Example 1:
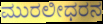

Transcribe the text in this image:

ಮುರಲೀಧರನ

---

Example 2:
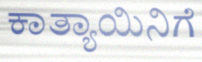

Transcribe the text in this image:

ಕಾತ್ಯಾಯಿನಿಗೆ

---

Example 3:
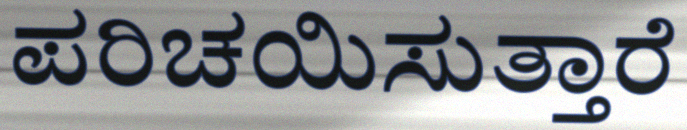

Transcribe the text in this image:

ಪರಿಚಯಿಸುತ್ತಾರೆ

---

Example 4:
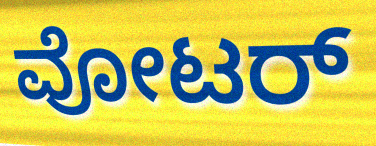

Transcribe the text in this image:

ವೋಟರ್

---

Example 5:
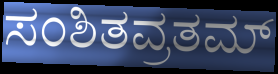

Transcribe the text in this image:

ಸಂಶಿತವ್ರತಮ್